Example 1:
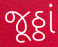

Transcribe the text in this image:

જૂઠ્ઠાં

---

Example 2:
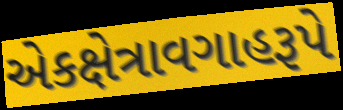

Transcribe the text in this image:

એકક્ષેત્રાવગાહરૂપે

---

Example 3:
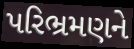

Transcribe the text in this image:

પરિભ્રમણને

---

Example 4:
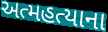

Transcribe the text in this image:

અત્મહત્યાના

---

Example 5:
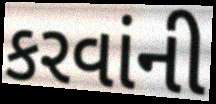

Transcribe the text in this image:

કરવાંની